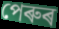
পেৰুৰ